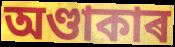
অণ্ডাকাৰ